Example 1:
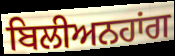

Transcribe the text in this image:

ਬਿਲੀਅਨਹਾਂਗ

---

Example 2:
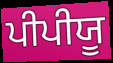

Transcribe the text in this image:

ਪੀਪੀਯੂ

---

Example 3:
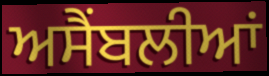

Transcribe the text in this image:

ਅਸੈਂਬਲੀਆਂ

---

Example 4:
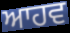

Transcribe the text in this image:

ਆਹਵ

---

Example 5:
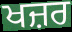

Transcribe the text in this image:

ਖਜ਼ਰ